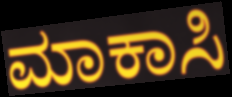
ಮಾಕಾಸಿ